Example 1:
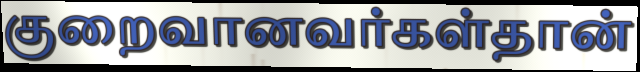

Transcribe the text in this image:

குறைவானவர்கள்தான்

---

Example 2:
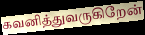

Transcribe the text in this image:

கவனித்துவருகிறேன்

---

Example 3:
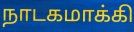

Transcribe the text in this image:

நாடகமாக்கி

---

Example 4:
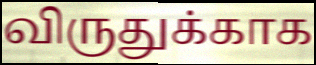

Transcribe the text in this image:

விருதுக்காக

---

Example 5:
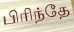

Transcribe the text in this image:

பிரிந்தே